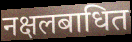
नक्षलबाधित